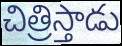
చిత్రిస్తాడు